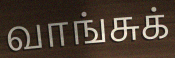
வாங்சுக்